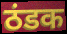
ठंडक